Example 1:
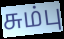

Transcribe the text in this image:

சும்பு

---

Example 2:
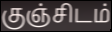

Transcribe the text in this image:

குஞ்சிடம்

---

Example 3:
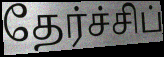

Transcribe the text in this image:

தேர்ச்சிப்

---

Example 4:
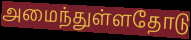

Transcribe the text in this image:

அமைந்துள்ளதோடு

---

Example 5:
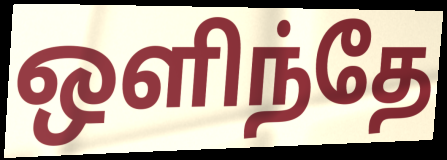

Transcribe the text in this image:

ஒளிந்தே